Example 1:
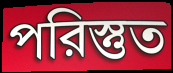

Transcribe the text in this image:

পরিস্তুত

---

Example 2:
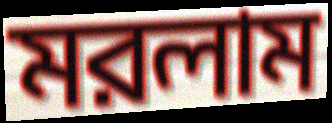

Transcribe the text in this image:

মরলাম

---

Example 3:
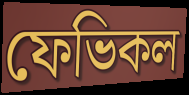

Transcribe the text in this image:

ফেভিকল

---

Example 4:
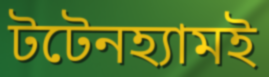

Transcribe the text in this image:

টটেনহ্যামই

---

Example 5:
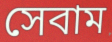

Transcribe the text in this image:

সেবাম